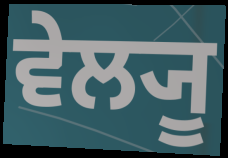
ਵੇਲ੍ਯੂ